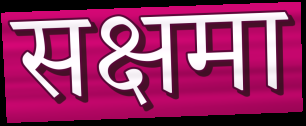
सक्षमा